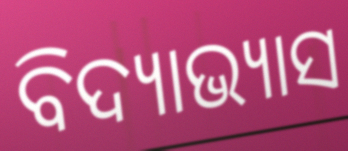
ବିଦ୍ୟାଭ୍ୟାସ